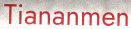
Tiananmen